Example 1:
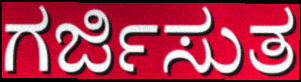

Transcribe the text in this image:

ಗರ್ಜಿಸುತ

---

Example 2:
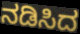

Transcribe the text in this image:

ನಡಿಸಿದ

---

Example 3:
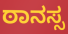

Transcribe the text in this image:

ಠಾನಸ್ಸ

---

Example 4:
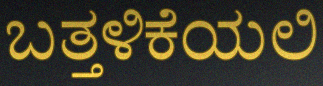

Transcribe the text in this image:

ಬತ್ತಳಿಕೆಯಲಿ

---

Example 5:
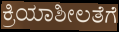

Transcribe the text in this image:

ಕ್ರಿಯಾಶೀಲತೆಗೆ